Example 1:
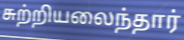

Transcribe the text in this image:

சுற்றியலைந்தார்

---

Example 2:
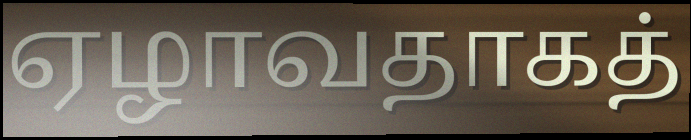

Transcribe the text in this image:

ஏழாவதாகத்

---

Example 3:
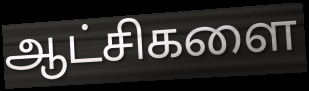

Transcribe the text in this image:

ஆட்சிகளை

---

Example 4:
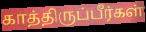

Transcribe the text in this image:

காத்திருப்பீர்கள்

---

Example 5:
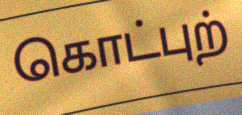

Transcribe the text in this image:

கொட்புற்